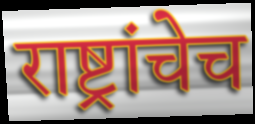
राष्ट्रांचेच